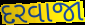
દરવાજા